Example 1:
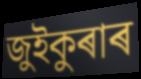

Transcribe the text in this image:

জুইকুৰাৰ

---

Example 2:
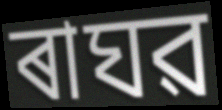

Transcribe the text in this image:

ৰাঘৱ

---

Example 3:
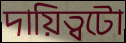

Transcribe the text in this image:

দায়িত্বটো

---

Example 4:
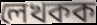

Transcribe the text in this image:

লেখকক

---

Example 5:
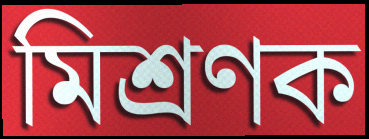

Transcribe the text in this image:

মিশ্ৰণক